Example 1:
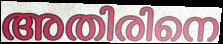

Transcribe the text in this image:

അതിരിനെ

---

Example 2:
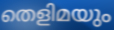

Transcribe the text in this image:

തെളിമയും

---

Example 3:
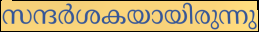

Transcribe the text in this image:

സന്ദർശകയായിരുന്നു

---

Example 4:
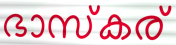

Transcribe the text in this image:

ഭാസ്കര്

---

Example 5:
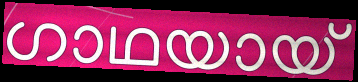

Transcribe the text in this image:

ഗാഥയായ്